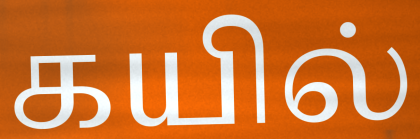
கயில்